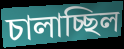
চালাচ্ছিল